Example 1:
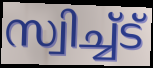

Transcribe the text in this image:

സ്വിച്ച്ട്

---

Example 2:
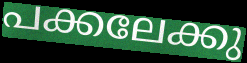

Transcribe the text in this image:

പക്കലേക്കു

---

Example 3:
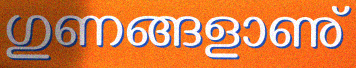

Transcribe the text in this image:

ഗുണങ്ങളാണു്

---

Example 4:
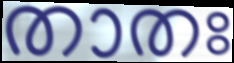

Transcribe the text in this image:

താതഃ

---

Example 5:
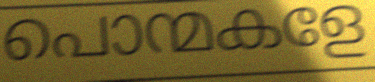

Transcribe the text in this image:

പൊന്മകളേ